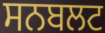
ਸਨਬਲਟ